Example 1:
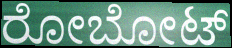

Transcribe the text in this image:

ರೋಬೋಟ್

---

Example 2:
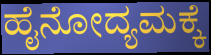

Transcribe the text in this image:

ಹೈನೋದ್ಯಮಕ್ಕೆ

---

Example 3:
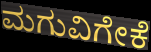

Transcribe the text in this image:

ಮಗುವಿಗೇಕೆ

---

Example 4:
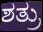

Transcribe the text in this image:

ಶತ್ರು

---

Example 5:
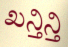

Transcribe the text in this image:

ಖನ್ತಿನ್ತಿ